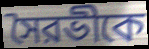
সৈরভীকে